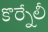
కొర్నేలీ